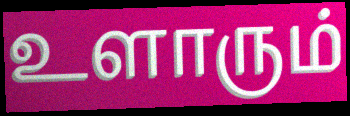
உளாரும்